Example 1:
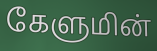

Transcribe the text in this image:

கேளுமின்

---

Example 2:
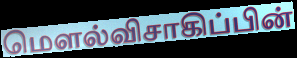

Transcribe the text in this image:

மௌல்விசாகிப்பின்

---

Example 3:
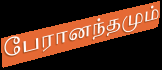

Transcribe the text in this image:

பேரானந்தமும்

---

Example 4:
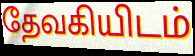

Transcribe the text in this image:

தேவகியிடம்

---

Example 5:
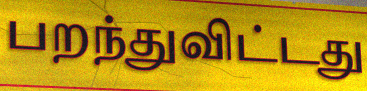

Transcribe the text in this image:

பறந்துவிட்டது